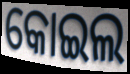
କୋଇଲ